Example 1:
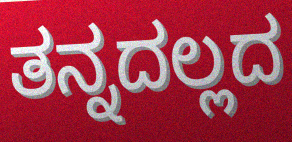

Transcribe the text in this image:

ತನ್ನದಲ್ಲದ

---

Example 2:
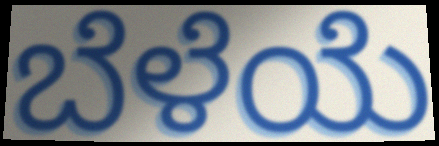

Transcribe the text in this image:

ಬೆಳೆಯೆ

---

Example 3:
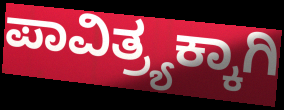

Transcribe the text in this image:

ಪಾವಿತ್ರ್ಯಕ್ಕಾಗಿ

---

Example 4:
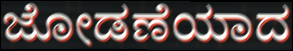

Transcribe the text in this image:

ಜೋಡಣೆಯಾದ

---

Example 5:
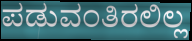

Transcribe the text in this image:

ಪಡುವಂತಿರಲಿಲ್ಲ